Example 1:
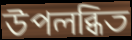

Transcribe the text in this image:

উপলব্ধিত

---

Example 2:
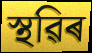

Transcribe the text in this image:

স্থৱিৰ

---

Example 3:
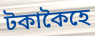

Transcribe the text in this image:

টকাকৈহে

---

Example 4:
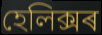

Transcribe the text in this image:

হেলিক্সৰ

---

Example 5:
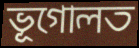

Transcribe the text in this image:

ভূগোলত